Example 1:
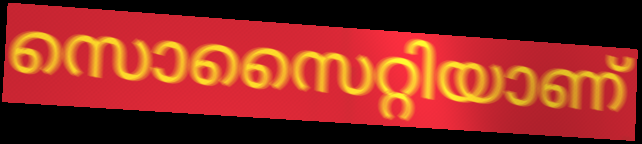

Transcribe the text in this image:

സൊസൈറ്റിയാണ്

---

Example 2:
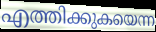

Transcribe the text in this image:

എത്തിക്കുകയെന്ന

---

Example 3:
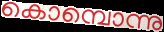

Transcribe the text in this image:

കൊമ്പൊന്നു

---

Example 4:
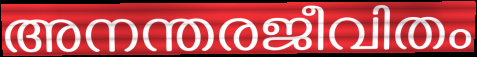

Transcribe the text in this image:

അനന്തരജീവിതം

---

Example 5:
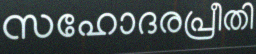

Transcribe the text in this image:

സഹോദരപ്രീതി